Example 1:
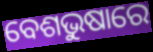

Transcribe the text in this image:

ବେଶଭୁଷାରେ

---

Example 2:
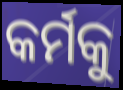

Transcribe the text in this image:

କର୍ମକୁ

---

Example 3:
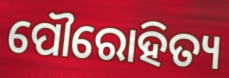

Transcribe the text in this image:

ପୌରୋହିତ୍ୟ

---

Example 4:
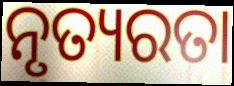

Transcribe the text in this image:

ନୃତ୍ୟରତା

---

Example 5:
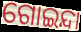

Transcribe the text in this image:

ଗୋଇନ୍ଦା